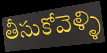
తీసుకోవెళ్ళి